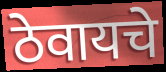
ठेवायचे